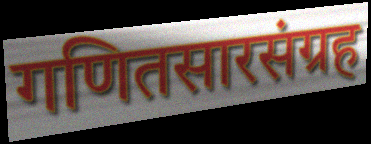
गणितसारसंग्रह